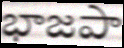
భాజపా